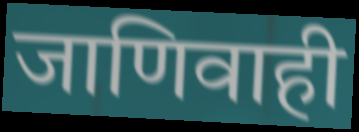
जाणिवाही